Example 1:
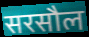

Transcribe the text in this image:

सरसौल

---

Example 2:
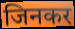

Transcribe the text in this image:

जिनकर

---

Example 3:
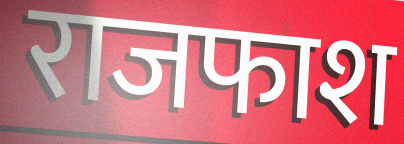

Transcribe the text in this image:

राजफाश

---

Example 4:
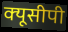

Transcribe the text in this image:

क्यूसीपी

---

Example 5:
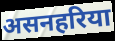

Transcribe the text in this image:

असनहरिया